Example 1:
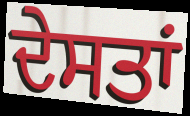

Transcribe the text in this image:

ਦੇਸਤਾਂ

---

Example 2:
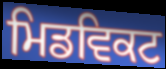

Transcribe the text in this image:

ਮਿਡਵਿਕਟ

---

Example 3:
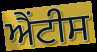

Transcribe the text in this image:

ਐਂਟੀਸ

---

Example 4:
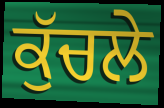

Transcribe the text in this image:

ਕੁੱਚਲੇ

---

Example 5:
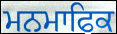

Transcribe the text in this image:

ਮਨਮਾਫਿਕ